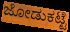
ಜೋಡುಕಟ್ಟೆ